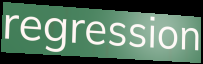
regression